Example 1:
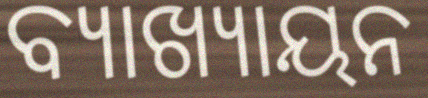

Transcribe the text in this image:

ବ୍ୟାଖ୍ୟାୟନ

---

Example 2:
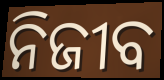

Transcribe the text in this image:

ନିଜୀବ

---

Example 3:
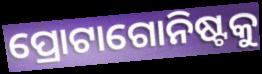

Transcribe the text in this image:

ପ୍ରୋଟାଗୋନିଷ୍ଟକୁ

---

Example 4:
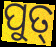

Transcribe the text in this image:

ପୁତ୍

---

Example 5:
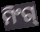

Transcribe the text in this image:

ମିଂଗ୍